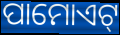
ପାମୋଏଟ୍